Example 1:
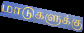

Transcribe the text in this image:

மாடுகளுக்கு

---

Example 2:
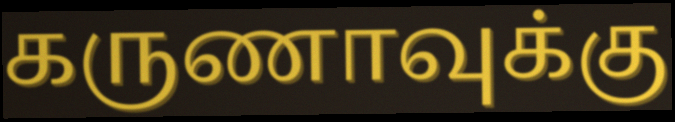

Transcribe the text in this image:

கருணாவுக்கு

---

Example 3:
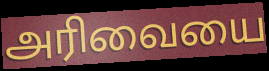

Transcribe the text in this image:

அரிவையை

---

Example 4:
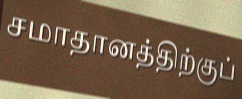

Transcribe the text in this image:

சமாதானத்திற்குப்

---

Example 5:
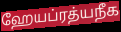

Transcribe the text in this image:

ஹேயப்ரத்யநீக